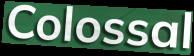
Colossal